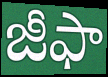
జీఫా